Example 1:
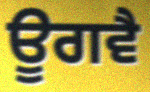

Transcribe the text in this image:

ਊਗਵੈ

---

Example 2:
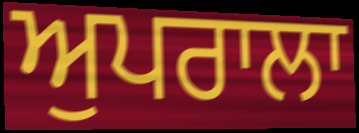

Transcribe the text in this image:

ਅੁਪਰਾਲਾ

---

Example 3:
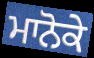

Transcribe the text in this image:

ਮਾਨੋਕੇ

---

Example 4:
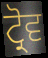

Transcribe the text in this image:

ਟ੍ਰੋਵ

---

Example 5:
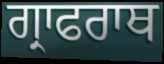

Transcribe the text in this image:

ਗ੍ਰਾਫਰਾਥ